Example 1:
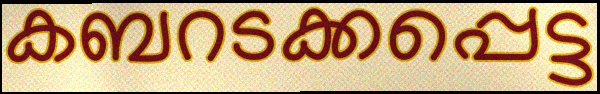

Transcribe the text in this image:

കബറടക്കപ്പെട്ട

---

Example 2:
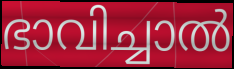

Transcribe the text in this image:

ഭാവിച്ചാൽ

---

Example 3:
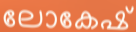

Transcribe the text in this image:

ലോകേഷ്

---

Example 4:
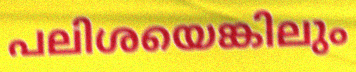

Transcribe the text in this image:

പലിശയെങ്കിലും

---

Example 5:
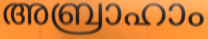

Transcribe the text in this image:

അബ്രാഹാം